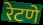
रेटणे